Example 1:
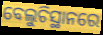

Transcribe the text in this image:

ବେଲୁଚିସ୍ଥାନରେ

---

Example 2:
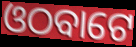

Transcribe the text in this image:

ଓଠବାଟେ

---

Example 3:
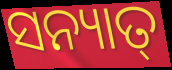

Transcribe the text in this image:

ସନ୍ୟାତ୍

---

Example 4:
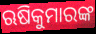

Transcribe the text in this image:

ଋଷିକୁମାରଙ୍କ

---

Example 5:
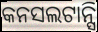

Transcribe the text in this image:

କନସଲଟାନ୍ସି